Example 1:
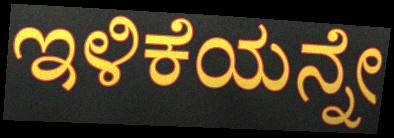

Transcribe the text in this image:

ಇಳಿಕೆಯನ್ನೇ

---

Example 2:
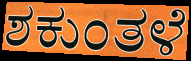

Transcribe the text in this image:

ಶಕುಂತಳೆ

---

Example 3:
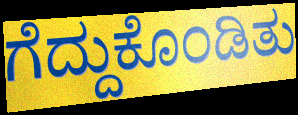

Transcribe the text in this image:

ಗೆದ್ದುಕೊಂಡಿತು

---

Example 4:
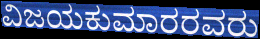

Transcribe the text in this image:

ವಿಜಯಕುಮಾರರವರು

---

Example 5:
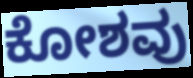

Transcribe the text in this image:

ಕೋಶವು